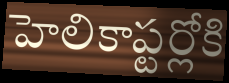
హెలికాప్టర్లోకి